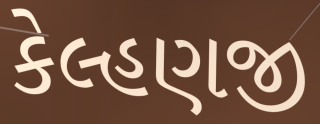
કેલ્હણજી